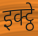
इक्ट्ठे